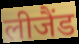
लीजैंड